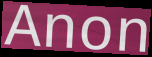
Anon